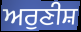
ਅਰੁਣੀਸ਼